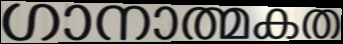
ഗാനാത്മകത